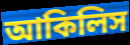
আকিলিস